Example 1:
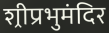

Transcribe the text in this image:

श्रीप्रभुमंदिर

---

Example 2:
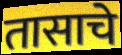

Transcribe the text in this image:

तासाचे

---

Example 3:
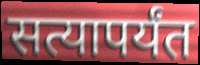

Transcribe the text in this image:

सत्यापर्यंत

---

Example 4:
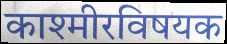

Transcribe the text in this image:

काश्मीरविषयक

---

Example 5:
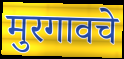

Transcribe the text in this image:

मुरगावचे